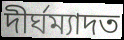
দীৰ্ঘম্যাদত